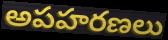
అపహరణలు